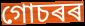
গোচৰৰ